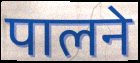
पालने